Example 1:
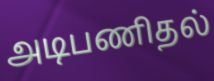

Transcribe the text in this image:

அடிபணிதல்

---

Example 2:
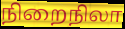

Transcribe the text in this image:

நிறைநிலா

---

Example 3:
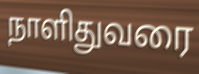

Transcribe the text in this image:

நாளிதுவரை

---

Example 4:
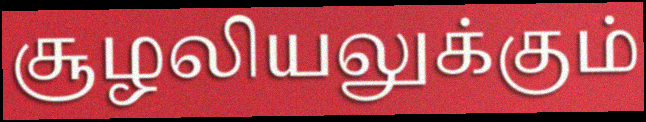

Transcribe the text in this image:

சூழலியலுக்கும்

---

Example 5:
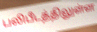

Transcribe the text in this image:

பலிபீடத்திலுள்ள